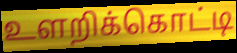
உளறிக்கொட்டி